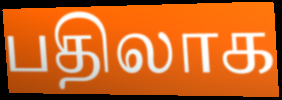
பதிலாக